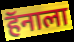
हॅनाला